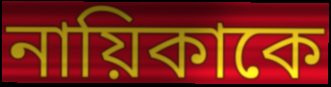
নায়িকাকে